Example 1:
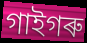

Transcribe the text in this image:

গাইগৰু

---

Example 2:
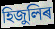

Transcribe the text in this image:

হিজুলিৰ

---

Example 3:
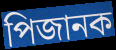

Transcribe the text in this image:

পিজানক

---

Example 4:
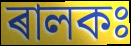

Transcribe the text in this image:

ৰালকঃ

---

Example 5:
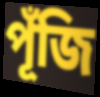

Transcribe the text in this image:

পূঁজি